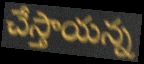
చేస్తాయన్న